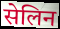
सेलिन